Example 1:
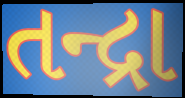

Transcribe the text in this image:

તન્દ્રા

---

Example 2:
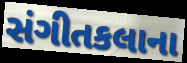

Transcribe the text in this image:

સંગીતકલાના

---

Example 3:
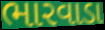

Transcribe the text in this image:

ભારવાડા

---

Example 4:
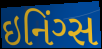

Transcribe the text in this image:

ઇનિંગ્સ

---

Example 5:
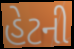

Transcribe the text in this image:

હેટની